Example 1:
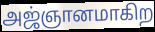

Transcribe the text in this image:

அஜ்ஞானமாகிற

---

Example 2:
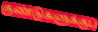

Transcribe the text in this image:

குண்டுகளுக்குப்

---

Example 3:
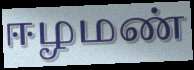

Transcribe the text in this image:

ஈழமண்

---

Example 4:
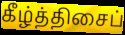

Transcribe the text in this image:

கீழ்த்திசைப்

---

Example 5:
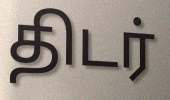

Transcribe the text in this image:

திடர்